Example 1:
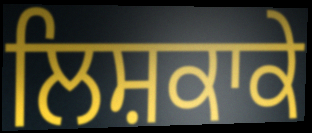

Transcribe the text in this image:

ਲਿਸ਼ਕਾਕੇ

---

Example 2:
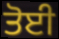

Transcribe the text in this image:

ਤੋਈ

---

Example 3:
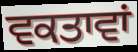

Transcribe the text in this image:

ਵਕਤਾਵਾਂ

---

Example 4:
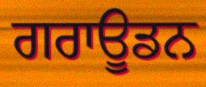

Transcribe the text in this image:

ਗਰਾਊਡਨ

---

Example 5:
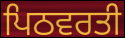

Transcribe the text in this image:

ਪਿਠਵਰਤੀ